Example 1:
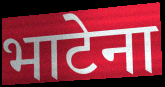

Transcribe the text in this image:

भाटेना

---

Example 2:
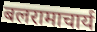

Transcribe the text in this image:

बलरामाचार्य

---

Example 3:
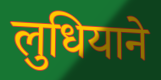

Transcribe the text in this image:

लुधियाने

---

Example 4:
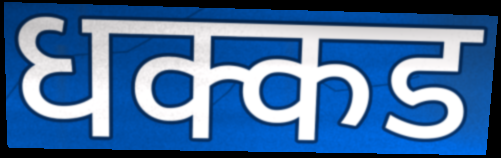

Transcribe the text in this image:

धक्कड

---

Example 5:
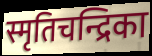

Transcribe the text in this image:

स्मृतिचन्द्रिका